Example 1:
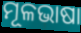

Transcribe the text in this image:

ମୂଳଭାଷା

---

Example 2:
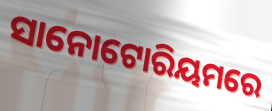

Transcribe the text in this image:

ସାନୋଟୋରିୟମରେ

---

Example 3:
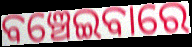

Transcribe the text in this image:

ବଞ୍ଚେଇବାରେ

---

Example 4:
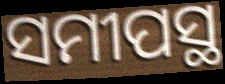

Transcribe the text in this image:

ସମୀପସ୍ଥ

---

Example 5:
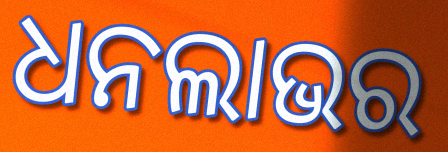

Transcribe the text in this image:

ଧନଲାଭର